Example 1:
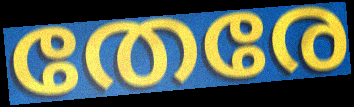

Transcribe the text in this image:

തേരേ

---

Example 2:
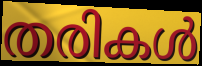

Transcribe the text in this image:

തരികൾ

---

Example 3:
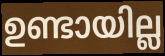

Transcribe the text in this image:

ഉണ്ടായില്ല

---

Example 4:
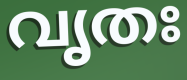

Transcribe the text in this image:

വൃതഃ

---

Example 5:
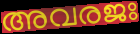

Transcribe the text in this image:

അവരജഃ